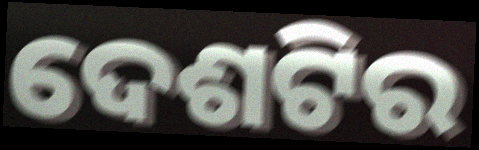
ଦେଶଟିର